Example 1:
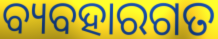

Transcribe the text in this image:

ବ୍ୟବହାରଗତ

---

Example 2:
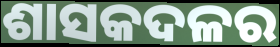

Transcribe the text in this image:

ଶାସକଦଳର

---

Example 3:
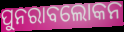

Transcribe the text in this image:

ପୁନରାବଲୋକନ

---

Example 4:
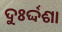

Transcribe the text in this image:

ଦୁଃର୍ଦ୍ଦଶା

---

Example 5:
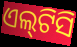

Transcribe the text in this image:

ଏଲ୍‌ଟିସି